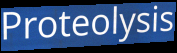
Proteolysis